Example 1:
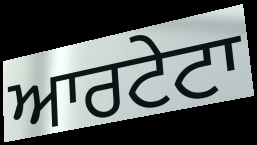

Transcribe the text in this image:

ਆਰਟੇਟਾ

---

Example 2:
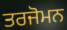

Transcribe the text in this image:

ਤਰਜੋਮਨ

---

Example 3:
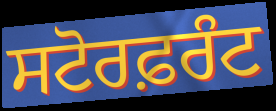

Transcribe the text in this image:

ਸਟੋਰਫ਼ਰੰਟ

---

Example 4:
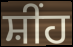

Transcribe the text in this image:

ਸ਼ੀਂਹ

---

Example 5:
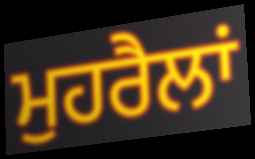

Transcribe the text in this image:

ਮੁਹਰੈਲਾਂ